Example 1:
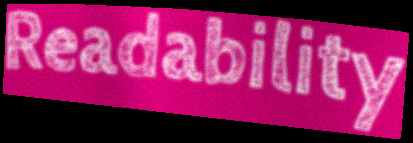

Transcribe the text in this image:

Readability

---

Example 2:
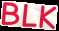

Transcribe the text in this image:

BLK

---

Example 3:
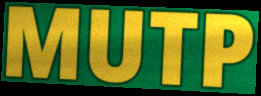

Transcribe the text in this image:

MUTP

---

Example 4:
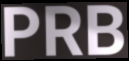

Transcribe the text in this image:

PRB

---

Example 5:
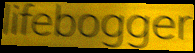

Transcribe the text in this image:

lifebogger